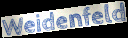
Weidenfeld